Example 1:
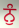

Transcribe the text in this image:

ਨੁੰ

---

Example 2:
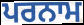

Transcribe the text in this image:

ਪਰਨਾਮ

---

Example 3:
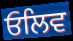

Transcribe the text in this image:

ਓਲਿਵ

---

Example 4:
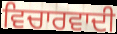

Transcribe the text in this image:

ਵਿਚਾਰਵਾਦੀ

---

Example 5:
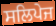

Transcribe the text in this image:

ਸਲਿਪੇਜ